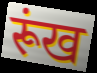
रूंख